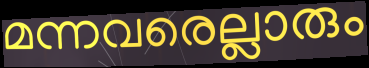
മന്നവരെല്ലാരും